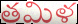
తమిళ